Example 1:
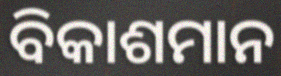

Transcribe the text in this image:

ବିକାଶମାନ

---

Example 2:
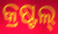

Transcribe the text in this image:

କ୍ରଷ୍ଟଲ୍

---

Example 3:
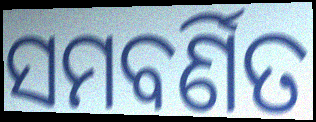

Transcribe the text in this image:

ସମବର୍ଣିତ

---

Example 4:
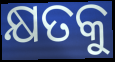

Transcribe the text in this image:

କ୍ଷତକୁ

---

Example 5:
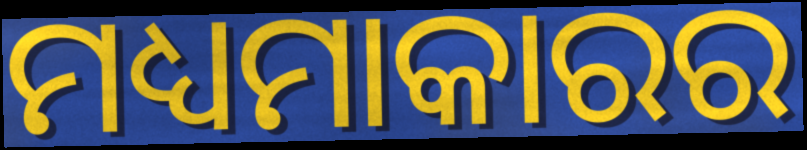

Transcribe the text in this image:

ମଧ୍ୟମାକାରର